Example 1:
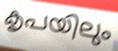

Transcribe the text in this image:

കൃപയിലും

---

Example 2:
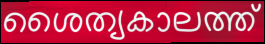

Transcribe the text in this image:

ശൈത്യകാലത്ത്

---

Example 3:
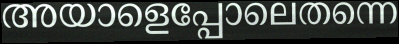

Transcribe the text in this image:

അയാളെപ്പോലെതന്നെ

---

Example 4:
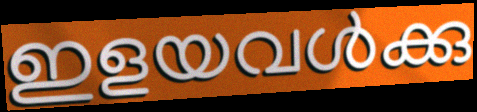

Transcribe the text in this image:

ഇളയവൾക്കു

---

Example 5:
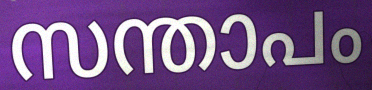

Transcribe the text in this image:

സന്താപം